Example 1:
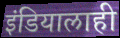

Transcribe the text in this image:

इंडियालाही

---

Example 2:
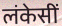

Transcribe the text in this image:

लंकेसीं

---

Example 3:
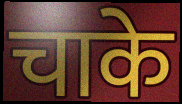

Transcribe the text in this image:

चाके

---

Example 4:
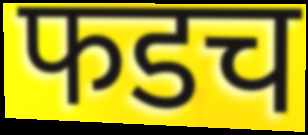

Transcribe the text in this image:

फडच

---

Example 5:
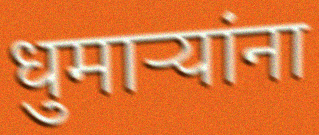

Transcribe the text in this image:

धुमाऱ्यांना